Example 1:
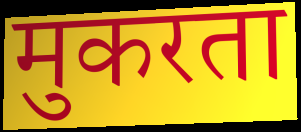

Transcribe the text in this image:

मुकरता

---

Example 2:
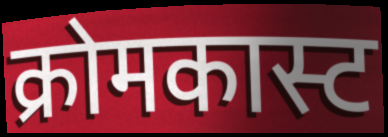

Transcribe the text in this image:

क्रोमकास्ट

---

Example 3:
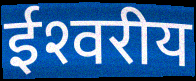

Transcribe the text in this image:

ईश्वरीय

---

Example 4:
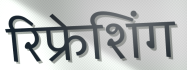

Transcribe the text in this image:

रिफ्रेशिंग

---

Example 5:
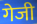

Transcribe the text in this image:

गेजी